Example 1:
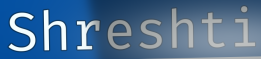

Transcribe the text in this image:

Shreshti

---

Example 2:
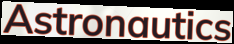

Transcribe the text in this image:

Astronautics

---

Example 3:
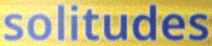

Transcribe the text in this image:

solitudes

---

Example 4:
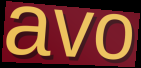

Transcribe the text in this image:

avo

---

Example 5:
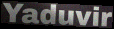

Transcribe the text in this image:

Yaduvir